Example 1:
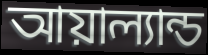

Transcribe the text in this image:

আয়াল্যান্ড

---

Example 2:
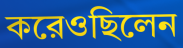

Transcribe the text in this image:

করেওছিলেন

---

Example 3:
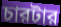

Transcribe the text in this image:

চারটার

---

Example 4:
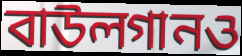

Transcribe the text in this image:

বাউলগানও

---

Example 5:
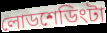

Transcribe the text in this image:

লোডশেডিংটা